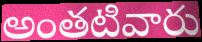
అంతటివారు